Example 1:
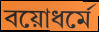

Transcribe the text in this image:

বয়োধর্মে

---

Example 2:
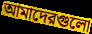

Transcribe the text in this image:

আমাদেরগুলো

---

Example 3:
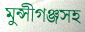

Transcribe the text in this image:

মুন্সীগঞ্জসহ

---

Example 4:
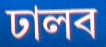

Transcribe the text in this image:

ঢালব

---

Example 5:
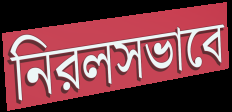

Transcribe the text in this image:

নিরলসভাবে